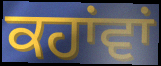
ਕਹਾਂਵਾਂ